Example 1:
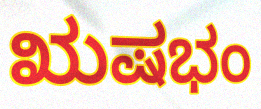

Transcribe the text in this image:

ಋಷಭಂ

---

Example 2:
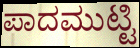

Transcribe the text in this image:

ಪಾದಮುಟ್ಟಿ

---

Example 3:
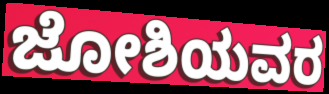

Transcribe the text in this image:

ಜೋಶಿಯವರ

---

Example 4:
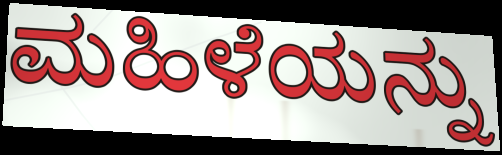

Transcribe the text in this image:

ಮಹಿಳೆಯನ್ನು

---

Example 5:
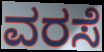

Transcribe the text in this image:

ವರಸೆ